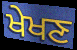
ਖੇਖਣ